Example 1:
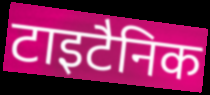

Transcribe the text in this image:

टाइटैनिक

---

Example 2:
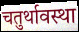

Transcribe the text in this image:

चतुर्थावस्था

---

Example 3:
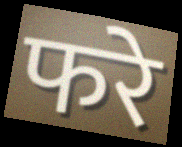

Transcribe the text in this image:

फरे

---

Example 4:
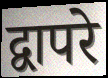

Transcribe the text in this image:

द्वापरे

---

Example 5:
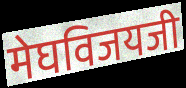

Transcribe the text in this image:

मेघविजयजी